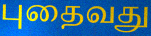
புதைவது